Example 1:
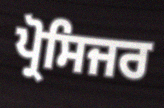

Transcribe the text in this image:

ਪ੍ਰੋਸਿਜਰ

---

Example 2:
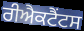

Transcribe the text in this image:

ਰੀਐਕਟੈਂਟਸ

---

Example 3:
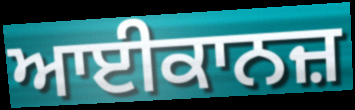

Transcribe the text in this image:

ਆਈਕਾਨਜ਼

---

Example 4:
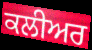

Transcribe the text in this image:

ਕਲੀਅਰ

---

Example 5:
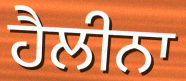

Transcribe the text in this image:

ਹੈਲੀਨਾ